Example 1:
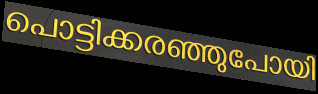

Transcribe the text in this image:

പൊട്ടിക്കരഞ്ഞുപോയി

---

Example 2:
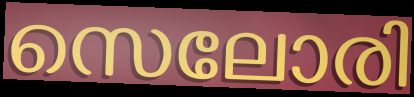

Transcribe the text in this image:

സെലോരി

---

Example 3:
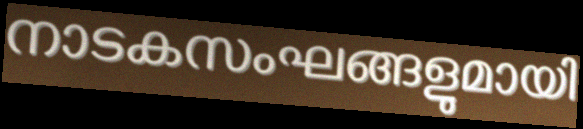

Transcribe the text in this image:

നാടകസംഘങ്ങളുമായി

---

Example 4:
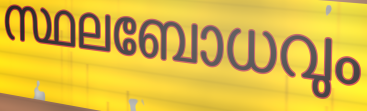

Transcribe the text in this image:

സ്ഥലബോധവും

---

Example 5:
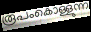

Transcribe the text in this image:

രൂപംകൊള്ളുന്ന